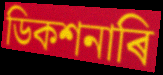
ডিকশনাৰি